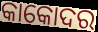
କାକୋଦର